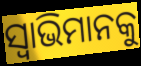
ସ୍ୱାଭିମାନକୁ